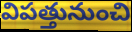
విపత్తునుంచి